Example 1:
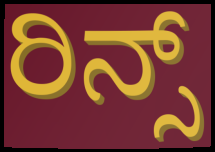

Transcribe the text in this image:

ರಿನ್ಸ್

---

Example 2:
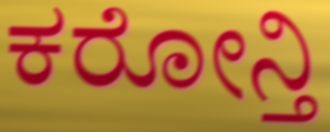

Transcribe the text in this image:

ಕರೋನ್ತಿ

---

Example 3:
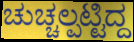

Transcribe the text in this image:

ಚುಚ್ಚಲ್ಪಟ್ಟಿದ್ದ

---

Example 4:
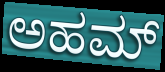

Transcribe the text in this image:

ಅಹಮ್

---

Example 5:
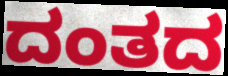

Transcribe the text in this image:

ದಂತದ